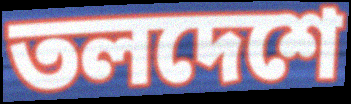
তলদেশে